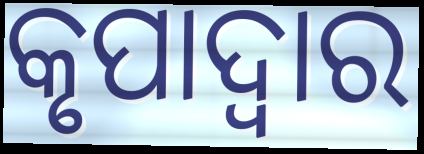
କୃପାଦ୍ଵାର